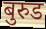
बुरुड